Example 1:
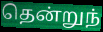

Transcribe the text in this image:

தென்றுந்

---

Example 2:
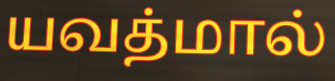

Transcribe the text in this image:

யவத்மால்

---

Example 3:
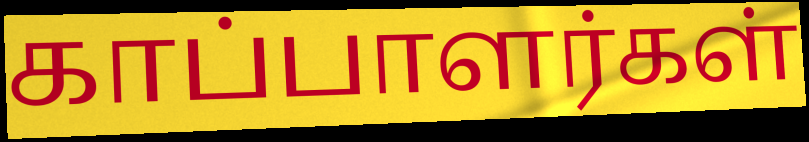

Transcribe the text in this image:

காப்பாளர்கள்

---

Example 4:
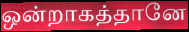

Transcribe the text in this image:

ஒன்றாகத்தானே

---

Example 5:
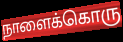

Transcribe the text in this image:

நாளைக்கொரு